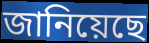
জানিয়েছে